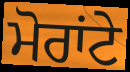
ਮੋਰਾਂਟੇ